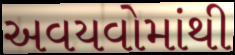
અવયવોમાંથી